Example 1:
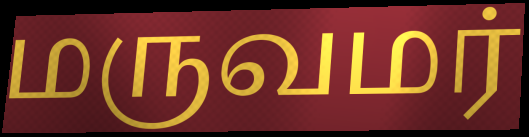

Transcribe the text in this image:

மருவமர்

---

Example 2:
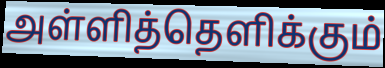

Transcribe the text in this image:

அள்ளித்தெளிக்கும்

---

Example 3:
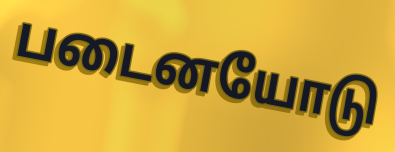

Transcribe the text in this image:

படைனயோடு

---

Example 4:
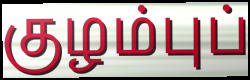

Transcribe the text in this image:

குழம்புப்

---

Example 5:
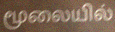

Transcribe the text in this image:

மூலையில்